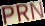
PRN